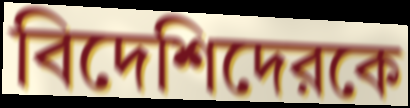
বিদেশিদেরকে